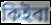
কিইবা